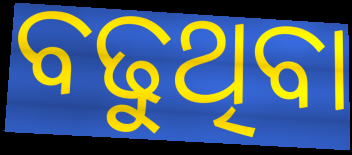
ବଢୁଥିବା